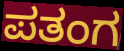
ಪತಂಗ